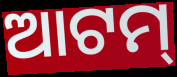
ଆଟମ୍